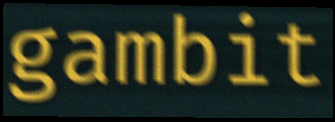
gambit